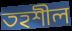
তহশীল